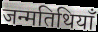
जन्मतिथियाँ